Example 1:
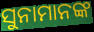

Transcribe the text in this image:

ସୁନାମାନଙ୍କ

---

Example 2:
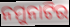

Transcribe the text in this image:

ନମୁନାଟିର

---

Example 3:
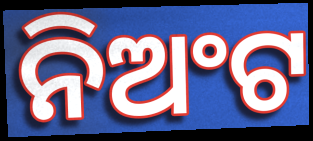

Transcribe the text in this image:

ନିଅଂଟ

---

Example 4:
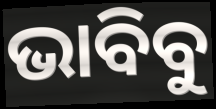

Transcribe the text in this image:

ଭାବିବୁ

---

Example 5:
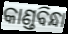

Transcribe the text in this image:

କାଣ୍ଡବିନ୍ଧା